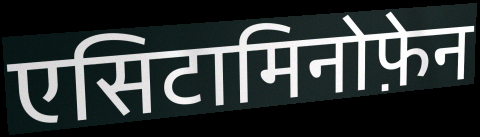
एसिटामिनोफ़ेन